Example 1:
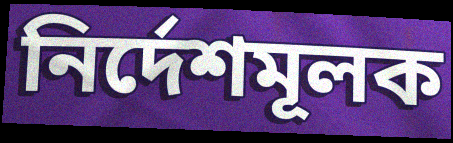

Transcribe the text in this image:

নির্দেশমূলক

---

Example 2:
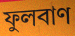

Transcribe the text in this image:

ফুলবাণ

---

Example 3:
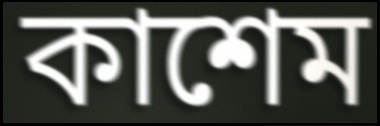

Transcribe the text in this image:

কাশেম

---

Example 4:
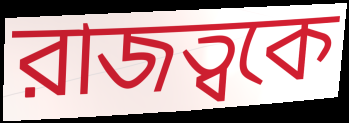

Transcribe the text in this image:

রাজত্বকে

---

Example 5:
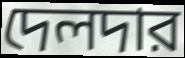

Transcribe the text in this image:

দেলদার